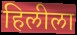
हिलीला